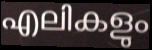
എലികളും